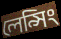
লেন্সিং